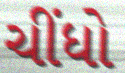
ચીંધો